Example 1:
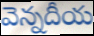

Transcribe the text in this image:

వెన్నదీయ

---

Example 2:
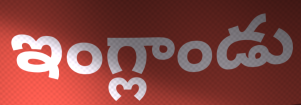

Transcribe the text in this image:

ఇంగ్లాండు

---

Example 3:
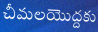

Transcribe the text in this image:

చీమలయొద్దకు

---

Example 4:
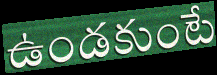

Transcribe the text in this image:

ఉండకుంటే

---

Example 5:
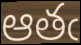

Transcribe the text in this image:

ఆతఁ